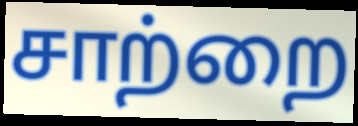
சாற்றை